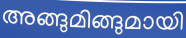
അങ്ങുമിങ്ങുമായി